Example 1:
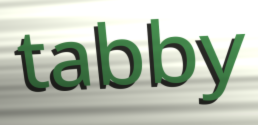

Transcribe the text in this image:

tabby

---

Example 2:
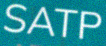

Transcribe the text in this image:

SATP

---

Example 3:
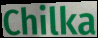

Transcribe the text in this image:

Chilka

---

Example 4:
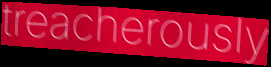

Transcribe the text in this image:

treacherously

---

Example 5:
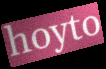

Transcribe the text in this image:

hoyto